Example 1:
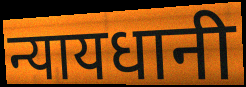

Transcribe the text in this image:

न्यायधानी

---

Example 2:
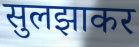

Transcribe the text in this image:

सुलझाकर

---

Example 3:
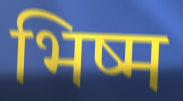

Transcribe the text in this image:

भिष्म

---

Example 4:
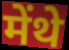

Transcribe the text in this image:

मेंथे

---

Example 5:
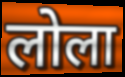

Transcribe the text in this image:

लोला